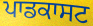
ਪਾਡਕਾਸਟ